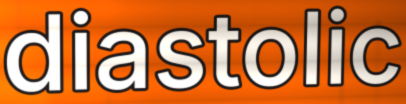
diastolic